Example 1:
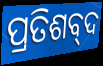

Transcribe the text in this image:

ପ୍ରତିଶବ୍‌ଦ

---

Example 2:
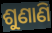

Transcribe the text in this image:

ଶୁଣାଣି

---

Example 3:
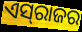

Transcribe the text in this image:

ଏସ୍‍ରାଜର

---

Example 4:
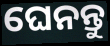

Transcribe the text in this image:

ଘେନନ୍ତୁ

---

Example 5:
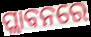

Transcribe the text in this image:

ପ୍ଲାବନରେ